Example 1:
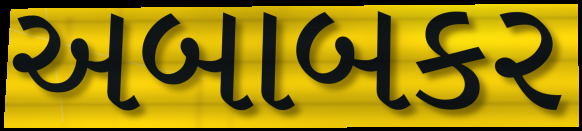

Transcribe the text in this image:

અબાબકર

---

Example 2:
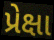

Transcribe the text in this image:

પ્રેક્ષા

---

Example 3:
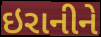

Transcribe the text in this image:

ઇરાનીને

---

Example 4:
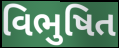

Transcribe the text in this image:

વિભુષિત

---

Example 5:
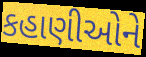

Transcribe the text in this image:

કહાણીઓને